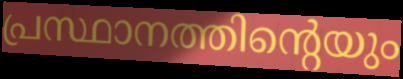
പ്രസ്ഥാനത്തിന്റെയും